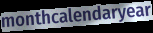
monthcalendaryear